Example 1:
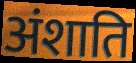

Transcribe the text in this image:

अंशाति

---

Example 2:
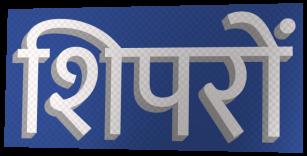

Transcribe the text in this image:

शिपरों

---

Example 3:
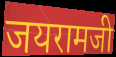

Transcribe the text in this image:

जयरामजी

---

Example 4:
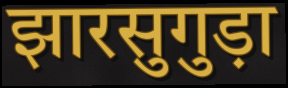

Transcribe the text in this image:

झारसुगुड़ा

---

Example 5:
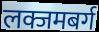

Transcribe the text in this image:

लक्जमबर्ग